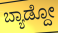
ಬ್ಯಾಡ್ದೋ